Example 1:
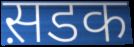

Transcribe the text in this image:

स़डक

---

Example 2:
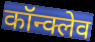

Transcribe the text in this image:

कॉन्क्लेव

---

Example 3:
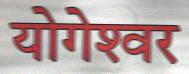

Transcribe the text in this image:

योगेश्‍वर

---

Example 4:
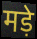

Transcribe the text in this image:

मड़े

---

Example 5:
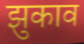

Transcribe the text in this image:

झुकाव